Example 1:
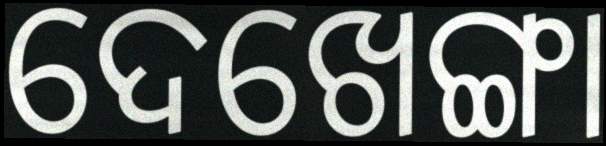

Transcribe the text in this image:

ଦେଖେଙ୍ଗା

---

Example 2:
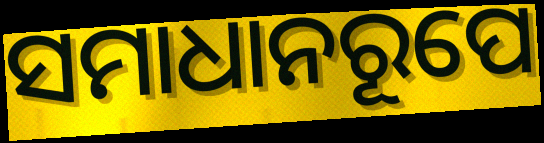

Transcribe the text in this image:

ସମାଧାନରୂପେ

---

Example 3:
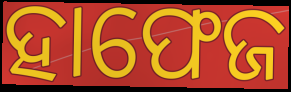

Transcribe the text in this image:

ହାଫେଜ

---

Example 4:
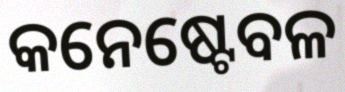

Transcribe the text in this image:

କନେଷ୍ଟେବଳ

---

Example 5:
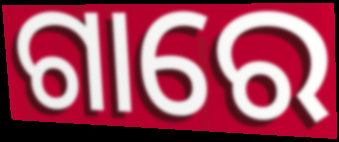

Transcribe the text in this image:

ଗାରେ